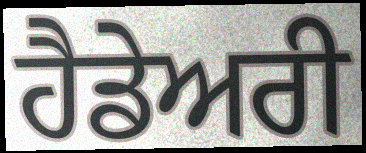
ਹੈਡੇਅਰੀ